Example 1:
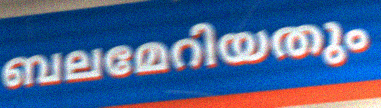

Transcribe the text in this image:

ബലമേറിയതും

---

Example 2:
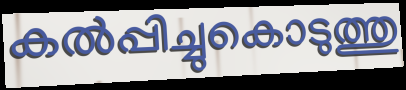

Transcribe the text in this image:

കൽപ്പിച്ചുകൊടുത്തു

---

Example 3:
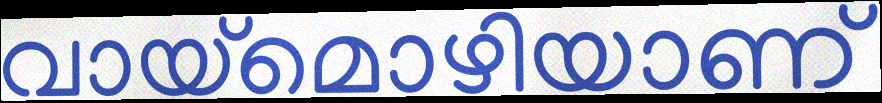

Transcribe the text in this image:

വായ്മൊഴിയാണ്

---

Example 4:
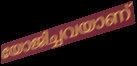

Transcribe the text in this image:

യോജിച്ചവയാണ്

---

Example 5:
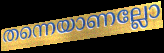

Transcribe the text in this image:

തന്നെയാണല്ലോ